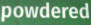
powdered